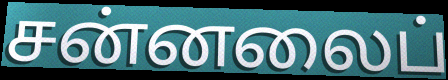
சன்னலைப்